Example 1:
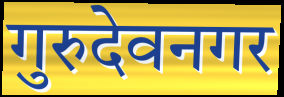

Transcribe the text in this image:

गुरुदेवनगर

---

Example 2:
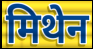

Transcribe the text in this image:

मिथेन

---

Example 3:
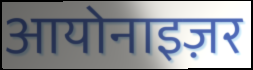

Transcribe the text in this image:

आयोनाइज़र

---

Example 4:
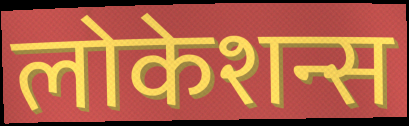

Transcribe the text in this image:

लोकेशन्स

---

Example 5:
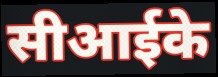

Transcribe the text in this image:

सीआईके